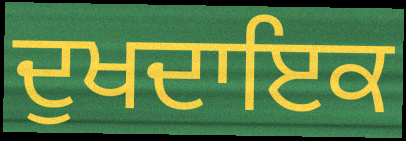
ਦੁਖਦਾਇਕ